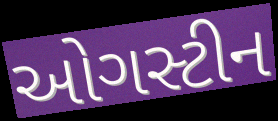
ઓગસ્ટીન